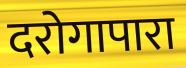
दरोगापारा